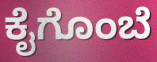
ಕೈಗೊಂಬೆ